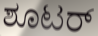
ಶೂಟರ್